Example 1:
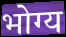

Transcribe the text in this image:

भोग्य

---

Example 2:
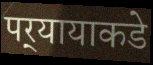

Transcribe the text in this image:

पर्यायाकडे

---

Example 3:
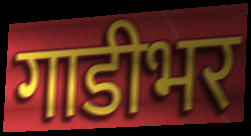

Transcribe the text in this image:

गाडीभर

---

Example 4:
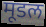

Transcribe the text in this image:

मूडल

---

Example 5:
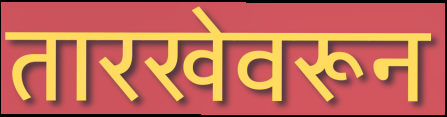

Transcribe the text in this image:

तारखेवरून